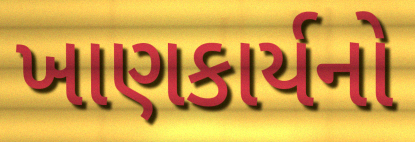
ખાણકાર્યનો